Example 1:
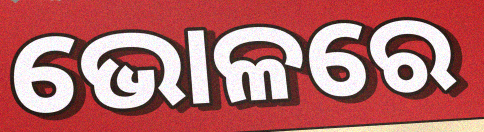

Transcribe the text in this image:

ଭୋଳରେ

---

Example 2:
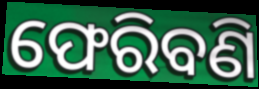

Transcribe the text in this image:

ଫେରିବଣି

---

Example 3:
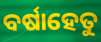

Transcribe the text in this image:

ବର୍ଷାହେତୁ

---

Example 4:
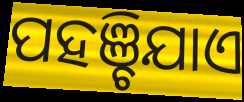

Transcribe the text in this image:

ପହଞ୍ଚିଯାଏ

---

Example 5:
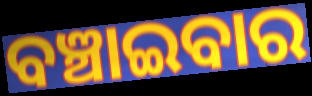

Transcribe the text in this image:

ବଞ୍ଚାଇବାର